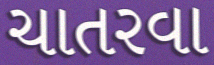
ચાતરવા